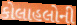
કોલાહલોની